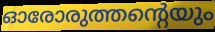
ഓരോരുത്തന്റെയും